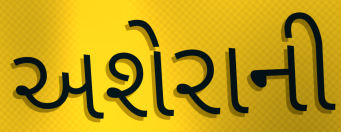
અશેરાની